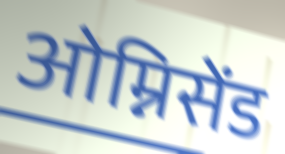
ओम्निसेंड